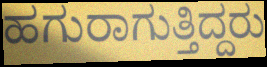
ಹಗುರಾಗುತ್ತಿದ್ದರು